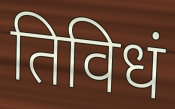
तिविधं